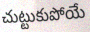
చుట్టుకుపోయే